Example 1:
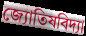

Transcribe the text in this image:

জ্যোতিষবিদ্যা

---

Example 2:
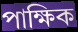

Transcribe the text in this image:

পাক্ষিক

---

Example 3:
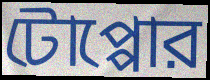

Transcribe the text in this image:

টোপ্পোর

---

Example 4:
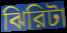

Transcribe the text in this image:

ঝিরিটা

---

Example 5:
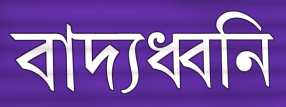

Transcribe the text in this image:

বাদ্যধ্বনি